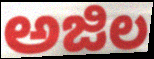
ಅಜಿಲ